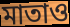
মাতাও